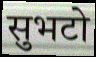
सुभटो